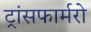
ट्रांसफार्मरो